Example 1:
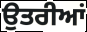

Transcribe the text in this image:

ਉਤਰੀਆਂ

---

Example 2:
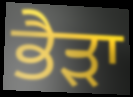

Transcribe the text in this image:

ਭੈੜਾ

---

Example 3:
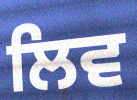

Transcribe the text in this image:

ਲਿਵ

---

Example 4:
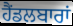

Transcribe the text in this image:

ਹੈਂਡਲਬਾਰਾਂ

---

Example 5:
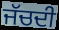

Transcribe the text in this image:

ਜੱਚਦੀ